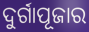
ଦୁର୍ଗାପୂଜାର